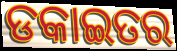
ଡକାଇତର